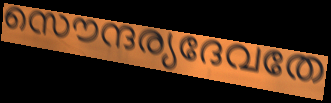
സൌന്ദര്യദേവതേ